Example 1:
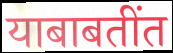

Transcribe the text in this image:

याबाबतींत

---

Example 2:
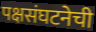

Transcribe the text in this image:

पक्षसंघटनेची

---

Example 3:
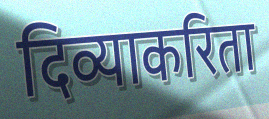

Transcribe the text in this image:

दिव्याकरिता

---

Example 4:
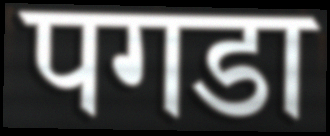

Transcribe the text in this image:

पगडा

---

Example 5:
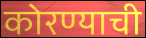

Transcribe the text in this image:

कोरण्याची